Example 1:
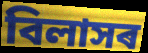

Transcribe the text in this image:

বিলাসৰ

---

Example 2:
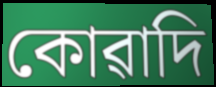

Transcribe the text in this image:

কোৱাদি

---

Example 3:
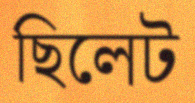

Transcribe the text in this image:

ছিলেট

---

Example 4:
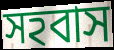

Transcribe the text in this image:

সহবাস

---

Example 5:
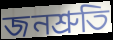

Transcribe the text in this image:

জনশ্ৰুতি